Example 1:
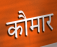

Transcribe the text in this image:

कौमार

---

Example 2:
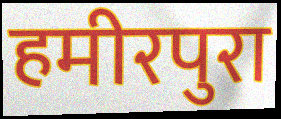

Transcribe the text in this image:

हमीरपुरा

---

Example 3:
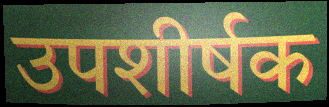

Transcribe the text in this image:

उपशीर्षक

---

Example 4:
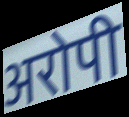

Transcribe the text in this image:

अरोपी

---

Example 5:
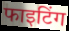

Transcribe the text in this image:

फाइटिंग